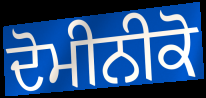
ਦੋਮੀਨੀਕੋ